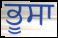
ਭੂਸਾ